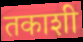
तकाशी